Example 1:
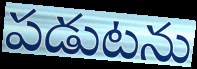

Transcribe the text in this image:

పడుటను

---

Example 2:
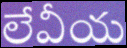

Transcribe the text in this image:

లేవీయ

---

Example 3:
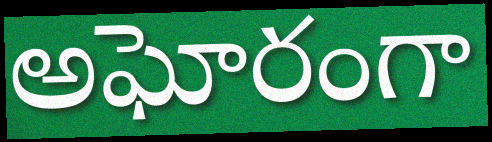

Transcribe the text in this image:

అఘోరంగా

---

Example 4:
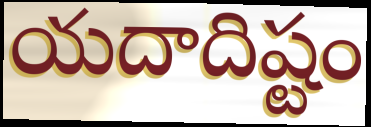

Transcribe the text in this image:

యదాదిష్టం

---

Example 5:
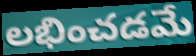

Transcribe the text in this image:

లభించడమే